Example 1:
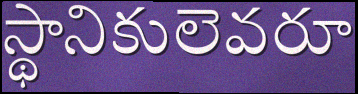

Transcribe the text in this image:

స్థానికులెవరూ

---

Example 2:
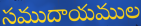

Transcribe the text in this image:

సముదాయముల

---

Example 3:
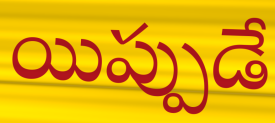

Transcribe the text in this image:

యిప్పుడే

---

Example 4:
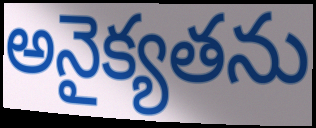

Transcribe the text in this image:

అనైక్యతను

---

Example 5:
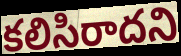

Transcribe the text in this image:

కలిసిరాదని